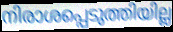
നിരാശപ്പെടുത്തിയില്ല